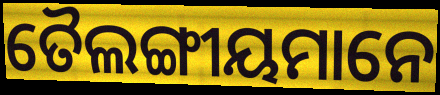
ତୈଲଙ୍ଗୀୟମାନେ